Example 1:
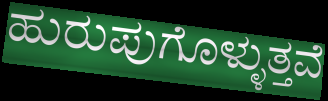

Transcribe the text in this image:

ಹುರುಪುಗೊಳ್ಳುತ್ತವೆ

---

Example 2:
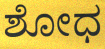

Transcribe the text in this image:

ಶೋಧ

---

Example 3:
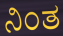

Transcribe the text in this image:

ನಿಂತ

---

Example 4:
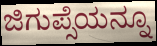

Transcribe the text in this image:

ಜಿಗುಪ್ಸೆಯನ್ನೂ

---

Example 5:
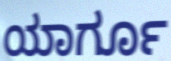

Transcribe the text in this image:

ಯಾರ್ಗೂ